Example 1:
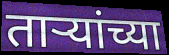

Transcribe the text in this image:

तार्‍यांच्या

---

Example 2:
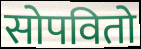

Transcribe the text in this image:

सोपवितो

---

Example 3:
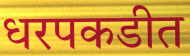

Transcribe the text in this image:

धरपकडीत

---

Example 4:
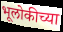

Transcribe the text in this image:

भूलोकीच्या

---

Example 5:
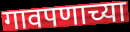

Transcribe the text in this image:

गावपणाच्या